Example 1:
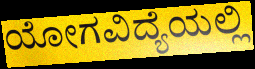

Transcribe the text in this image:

ಯೋಗವಿದ್ಯೆಯಲ್ಲಿ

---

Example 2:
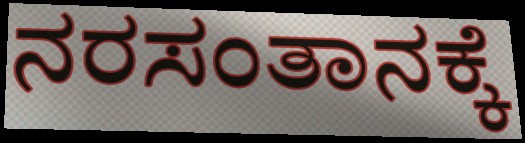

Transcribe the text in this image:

ನರಸಂತಾನಕ್ಕೆ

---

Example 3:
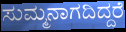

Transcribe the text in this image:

ಸುಮ್ಮನಾಗದಿದ್ದರೆ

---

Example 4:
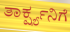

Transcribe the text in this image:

ತಾರ್ಕ್ಷ್ಯನಿಗೆ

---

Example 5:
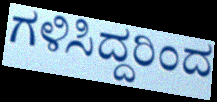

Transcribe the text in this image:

ಗಳಿಸಿದ್ದರಿಂದ